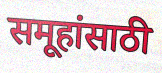
समूहांसाठी